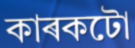
কাৰকটো